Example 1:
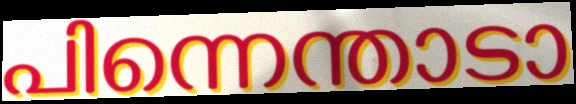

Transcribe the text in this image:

പിന്നെന്താടാ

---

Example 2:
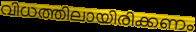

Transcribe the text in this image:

വിധത്തിലായിരിക്കണം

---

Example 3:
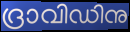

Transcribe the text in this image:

ദ്രാവിഡിനു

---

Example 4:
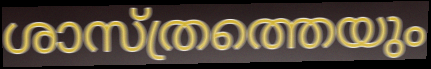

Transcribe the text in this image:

ശാസ്ത്രത്തെയും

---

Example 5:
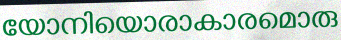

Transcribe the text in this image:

യോനിയൊരാകാരമൊരു